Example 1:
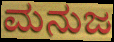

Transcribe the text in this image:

ಮನುಜ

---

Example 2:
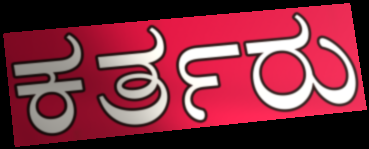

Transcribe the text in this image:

ಕರ್ತರು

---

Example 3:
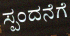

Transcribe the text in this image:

ಸ್ಪಂದನೆಗೆ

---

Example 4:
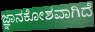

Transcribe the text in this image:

ಜ್ಞಾನಕೋಶವಾಗಿದೆ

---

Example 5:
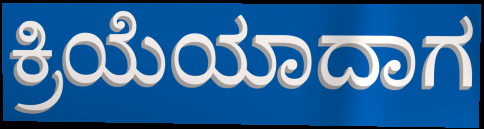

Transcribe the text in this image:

ಕ್ರಿಯೆಯಾದಾಗ